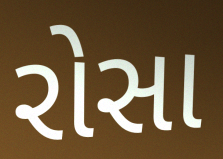
રોસા